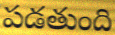
పడతుంది